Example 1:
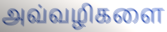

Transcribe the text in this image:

அவ்வழிகளை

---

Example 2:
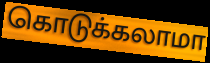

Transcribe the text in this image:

கொடுக்கலாமா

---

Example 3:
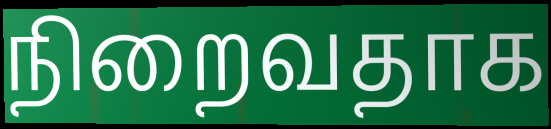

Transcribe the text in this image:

நிறைவதாக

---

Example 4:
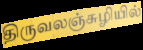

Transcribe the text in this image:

திருவலஞ்சுழியில்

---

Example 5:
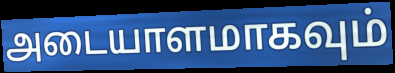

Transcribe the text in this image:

அடையாளமாகவும்